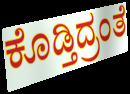
ಕೊಡ್ತಿದ್ರಂತೆ